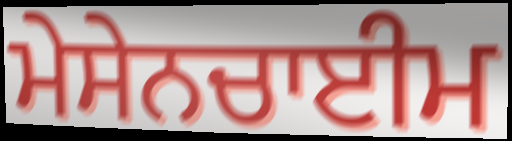
ਮੇਸੇਨਚਾਈਮ